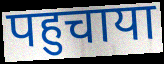
पहुचाया